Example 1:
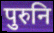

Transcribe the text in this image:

पुरुनि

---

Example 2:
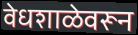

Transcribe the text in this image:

वेधशाळेवरून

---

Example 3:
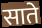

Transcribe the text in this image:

साते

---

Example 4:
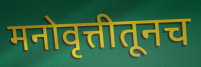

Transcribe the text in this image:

मनोवृत्तीतूनच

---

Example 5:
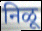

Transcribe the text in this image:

निळू